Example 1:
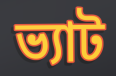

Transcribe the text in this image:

ভ্যাট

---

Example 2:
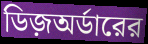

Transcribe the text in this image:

ডিজ়অর্ডারের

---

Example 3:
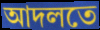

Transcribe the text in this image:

আদলতে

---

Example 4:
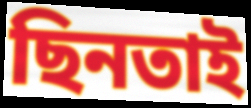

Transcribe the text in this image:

ছিনতাই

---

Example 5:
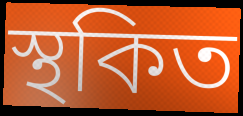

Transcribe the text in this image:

স্থকিত